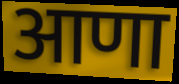
आणा